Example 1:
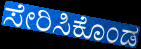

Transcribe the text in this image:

ಸೇರಿಸಿಕೊಂಡ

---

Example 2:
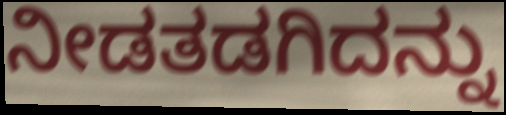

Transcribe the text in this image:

ನೀಡತಡಗಿದನ್ನು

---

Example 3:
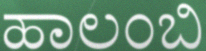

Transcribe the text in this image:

ಹಾಲಂಬಿ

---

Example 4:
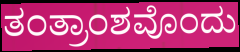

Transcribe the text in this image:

ತಂತ್ರಾಂಶವೊಂದು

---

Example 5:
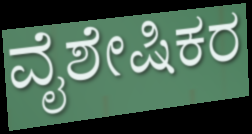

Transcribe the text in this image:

ವೈಶೇಷಿಕರ